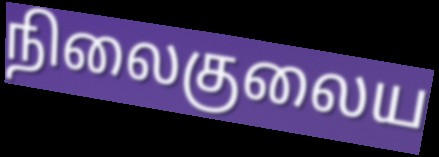
நிலைகுலைய